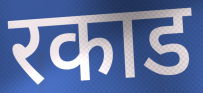
रकाड